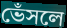
ভেঁসলে